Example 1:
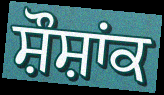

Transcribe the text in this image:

ਸ਼ੌਸ਼ਾਂਕ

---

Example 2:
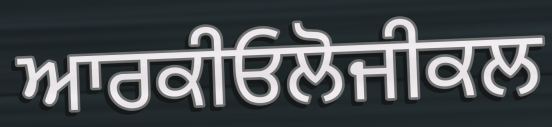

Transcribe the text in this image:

ਆਰਕੀਓਲੋਜੀਕਲ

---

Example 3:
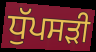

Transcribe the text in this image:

ਧੁੱਪਸੜੀ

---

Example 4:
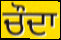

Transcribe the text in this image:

ਚੌਦਾ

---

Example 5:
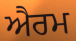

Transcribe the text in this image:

ਐਰਮ